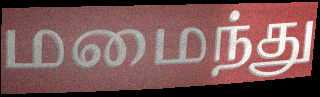
மமைந்து